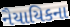
નૈયાયિકના